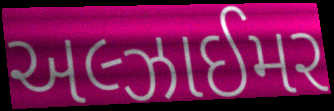
અલ્ઝાઈમર